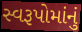
સ્વરૂપોમાંનું